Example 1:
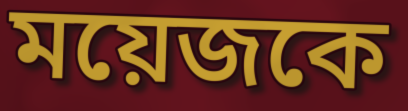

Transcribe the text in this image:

ময়েজকে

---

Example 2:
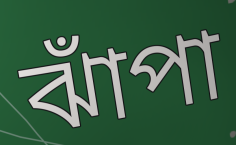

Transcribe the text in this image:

ঝাঁপা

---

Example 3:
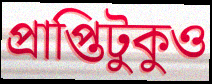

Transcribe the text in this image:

প্রাপ্তিটুকুও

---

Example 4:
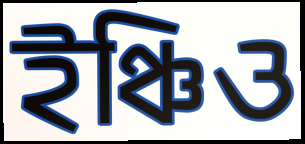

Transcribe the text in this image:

ইঞ্চিও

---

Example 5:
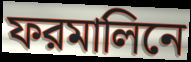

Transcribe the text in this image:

ফরমালিনে